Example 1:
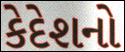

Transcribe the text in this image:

કેદેશનો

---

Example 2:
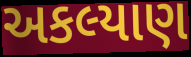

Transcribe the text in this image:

અકલ્યાણ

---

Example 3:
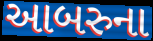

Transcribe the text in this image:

આબરુના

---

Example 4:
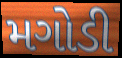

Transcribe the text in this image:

મગોડી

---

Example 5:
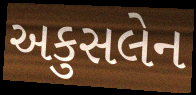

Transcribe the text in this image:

અકુસલેન